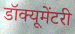
डॉक्यूमेंटरी